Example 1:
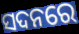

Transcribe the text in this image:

ସଦନରେ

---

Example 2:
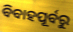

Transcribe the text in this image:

ବିବାହପୂର୍ବରୁ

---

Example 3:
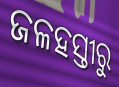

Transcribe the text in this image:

ଜଳହସ୍ତୀରୁ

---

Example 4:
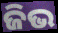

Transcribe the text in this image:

ଜିଭ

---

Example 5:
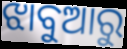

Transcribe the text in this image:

ଝାବୁଆରୁ